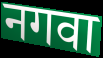
नगवा